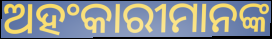
ଅହଂକାରୀମାନଙ୍କ